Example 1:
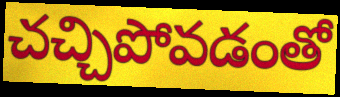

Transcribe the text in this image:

చచ్చిపోవడంతో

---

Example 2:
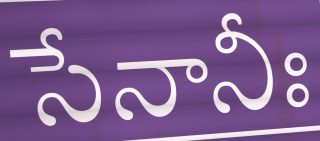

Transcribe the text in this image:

సేనానీః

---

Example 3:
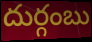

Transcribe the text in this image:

దుర్గంబు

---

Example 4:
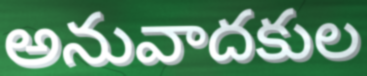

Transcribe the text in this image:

అనువాదకుల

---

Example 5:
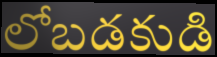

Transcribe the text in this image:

లోబడకుడి